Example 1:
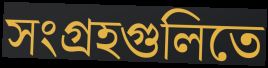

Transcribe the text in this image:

সংগ্রহগুলিতে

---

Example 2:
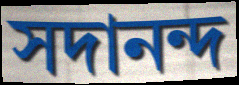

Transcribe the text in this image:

সদানন্দ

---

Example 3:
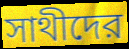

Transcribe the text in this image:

সাথীদের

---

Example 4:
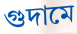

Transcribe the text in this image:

গুদামে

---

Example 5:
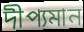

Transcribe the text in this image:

দীপ্যমান